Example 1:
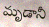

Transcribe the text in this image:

మృడానీ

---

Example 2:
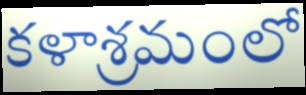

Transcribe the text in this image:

కళాశ్రమంలో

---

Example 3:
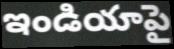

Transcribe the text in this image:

ఇండియాపై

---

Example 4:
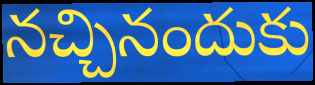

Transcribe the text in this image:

నచ్చినందుకు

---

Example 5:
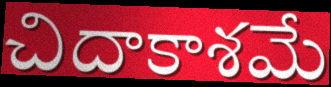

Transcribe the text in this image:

చిదాకాశమే